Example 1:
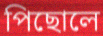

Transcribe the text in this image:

পিছোলে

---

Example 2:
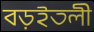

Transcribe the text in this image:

বড়ইতলী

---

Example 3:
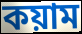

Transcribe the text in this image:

কয়াম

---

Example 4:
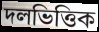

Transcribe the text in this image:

দলভিত্তিক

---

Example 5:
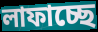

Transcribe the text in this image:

লাফাচ্ছে